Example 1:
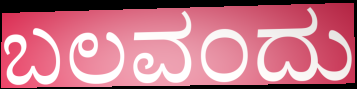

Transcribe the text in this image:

ಬಲವಂದು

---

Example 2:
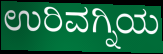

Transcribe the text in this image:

ಉರಿವಗ್ನಿಯ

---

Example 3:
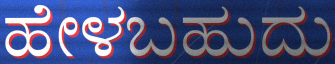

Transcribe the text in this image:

ಹೇಳಬಹುದು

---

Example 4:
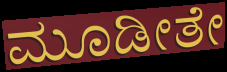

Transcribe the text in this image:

ಮೂಡೀತೇ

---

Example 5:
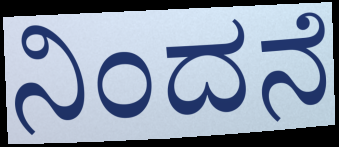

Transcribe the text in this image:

ನಿಂದನೆ